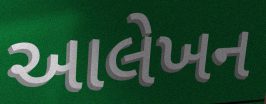
આલેખન